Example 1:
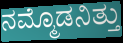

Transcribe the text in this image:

ನಮ್ಮೊಡನಿತ್ತು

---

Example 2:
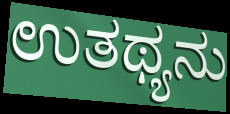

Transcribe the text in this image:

ಉತಥ್ಯನು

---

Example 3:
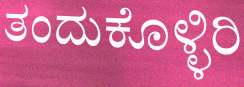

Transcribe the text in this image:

ತಂದುಕೊಳ್ಳಿರಿ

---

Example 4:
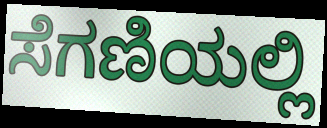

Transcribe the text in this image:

ಸೆಗಣಿಯಲ್ಲಿ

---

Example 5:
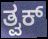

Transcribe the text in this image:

ತ್ವಕ್